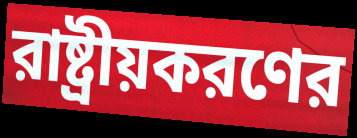
রাষ্ট্রীয়করণের